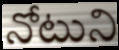
నోటుని